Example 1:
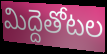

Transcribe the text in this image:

మిద్దెతోటల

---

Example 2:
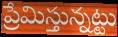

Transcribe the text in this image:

ప్రేమిస్తున్నట్టు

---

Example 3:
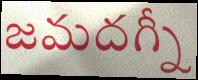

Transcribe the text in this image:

జమదగ్నీ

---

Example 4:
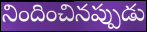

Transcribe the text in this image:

నిందించినప్పుడు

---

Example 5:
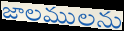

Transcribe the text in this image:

జాలములను